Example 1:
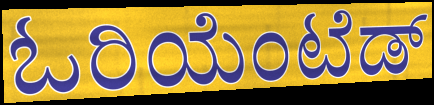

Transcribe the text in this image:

ಓರಿಯೆಂಟೆಡ್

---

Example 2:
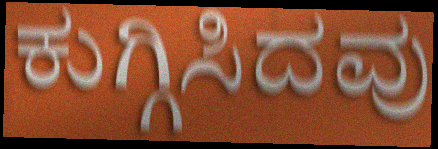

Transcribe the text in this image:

ಕುಗ್ಗಿಸಿದವು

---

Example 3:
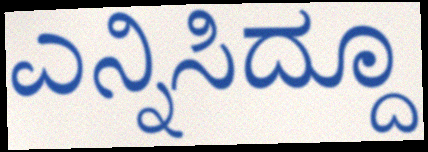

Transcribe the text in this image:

ಎನ್ನಿಸಿದ್ದೂ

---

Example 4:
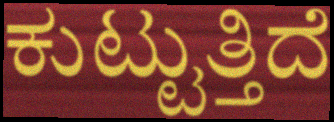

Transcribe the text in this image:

ಕುಟ್ಟುತ್ತಿದೆ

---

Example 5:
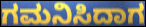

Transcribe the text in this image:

ಗಮನಿಸಿದಾಗ